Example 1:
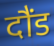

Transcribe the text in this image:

दौंड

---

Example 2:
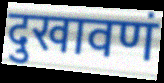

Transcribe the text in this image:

दुखावणं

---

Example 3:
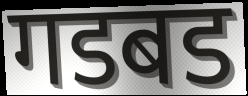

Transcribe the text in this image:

गडबड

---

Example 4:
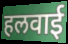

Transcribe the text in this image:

हलवाई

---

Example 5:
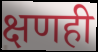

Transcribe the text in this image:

क्षणही